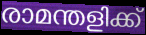
രാമന്തളിക്ക്